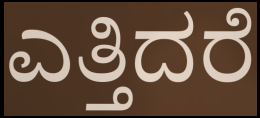
ಎತ್ತಿದರೆ